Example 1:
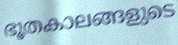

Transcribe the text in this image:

ഭൂതകാലങ്ങളുടെ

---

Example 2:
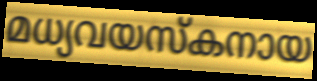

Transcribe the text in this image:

മധ്യവയസ്കനായ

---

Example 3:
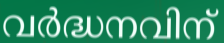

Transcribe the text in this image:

വർദ്ധനവിന്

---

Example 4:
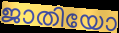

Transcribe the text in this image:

ജാതിയോ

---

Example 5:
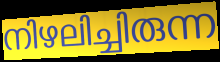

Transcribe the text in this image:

നിഴലിച്ചിരുന്ന